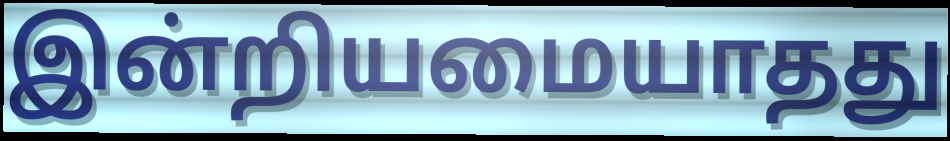
இன்றியமையாதது